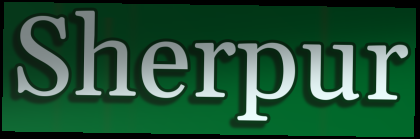
Sherpur